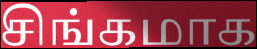
சிங்கமாக